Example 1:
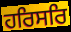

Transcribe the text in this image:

ਹਰਿਸਰਿ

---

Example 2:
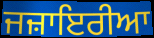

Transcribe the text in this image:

ਜਜ਼ਾਇਰੀਆ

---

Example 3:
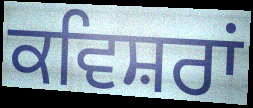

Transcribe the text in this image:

ਕਵਿਸ਼ਰਾਂ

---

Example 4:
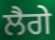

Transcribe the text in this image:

ਲੈਗੇ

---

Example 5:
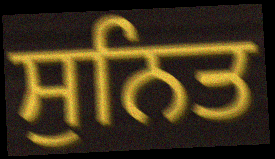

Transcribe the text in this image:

ਸੁਨਿਤ